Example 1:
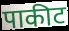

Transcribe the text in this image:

पाकीट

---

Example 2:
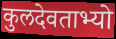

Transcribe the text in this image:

कुलदेवताभ्यो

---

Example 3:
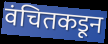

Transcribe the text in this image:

वंचितकडून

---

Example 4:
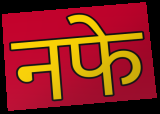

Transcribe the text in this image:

नफे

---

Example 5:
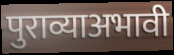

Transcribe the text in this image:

पुराव्याअभावी